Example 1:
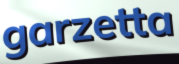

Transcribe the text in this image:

garzetta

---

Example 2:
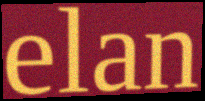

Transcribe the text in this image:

elan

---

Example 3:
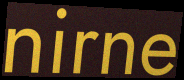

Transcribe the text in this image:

nirne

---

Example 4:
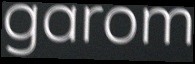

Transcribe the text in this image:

garom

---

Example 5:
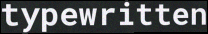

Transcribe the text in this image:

typewritten